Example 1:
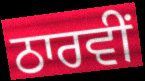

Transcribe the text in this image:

ਠਾਰਵੀਂ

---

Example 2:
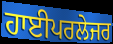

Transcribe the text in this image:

ਹਾਈਪਰਲੇਜਰ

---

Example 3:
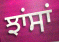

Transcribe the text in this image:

ਝਾਂਸਾਂ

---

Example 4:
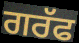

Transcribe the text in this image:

ਗਰੱਫ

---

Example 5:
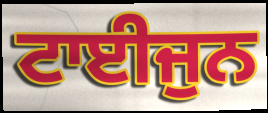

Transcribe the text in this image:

ਟਾਈਜੁਨ